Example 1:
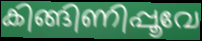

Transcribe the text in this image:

കിങ്ങിണിപ്പൂവേ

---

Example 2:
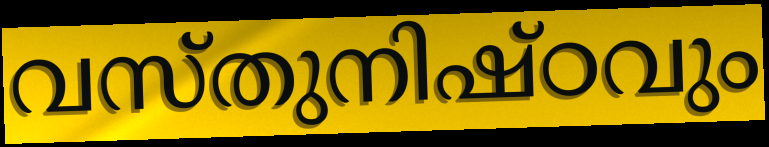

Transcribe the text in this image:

വസ്തുനിഷ്ഠവും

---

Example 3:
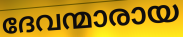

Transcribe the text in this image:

ദേവന്മാരായ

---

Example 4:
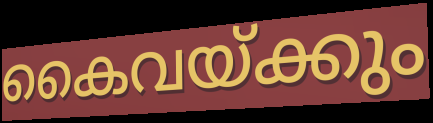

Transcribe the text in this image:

കൈവയ്ക്കും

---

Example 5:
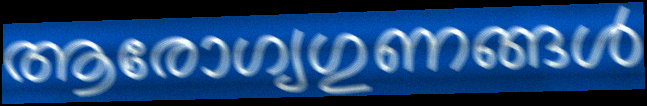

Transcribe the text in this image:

ആരോഗ്യഗുണങ്ങൾ